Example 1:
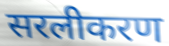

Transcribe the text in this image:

सरलीकरण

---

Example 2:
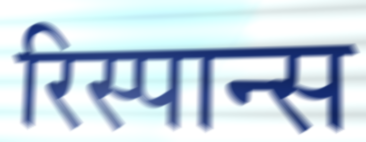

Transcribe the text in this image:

रिस्पान्स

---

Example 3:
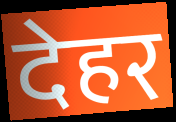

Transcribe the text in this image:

देहर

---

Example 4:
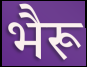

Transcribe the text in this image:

भैरू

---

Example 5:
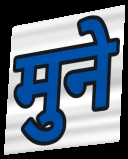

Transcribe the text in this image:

मुने